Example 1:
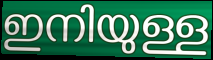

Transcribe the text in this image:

ഇനിയുള്ള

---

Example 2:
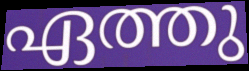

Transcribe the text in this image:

ഏത്തു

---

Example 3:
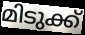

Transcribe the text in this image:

മിടുക്ക്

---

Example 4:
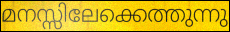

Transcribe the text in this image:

മനസ്സിലേക്കെത്തുന്നു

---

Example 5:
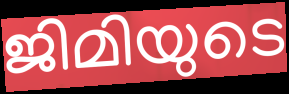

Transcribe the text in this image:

ജിമിയുടെ